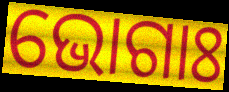
ଭୋଗାଃ